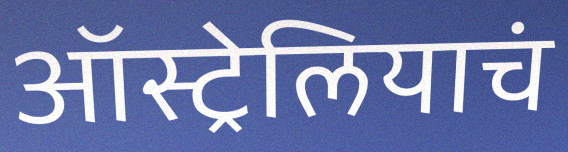
ऑस्ट्रेलियाचं